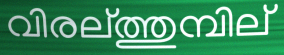
വിരല്ത്തുമ്പില്